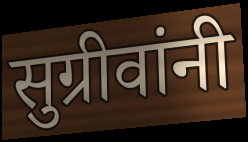
सुग्रीवांनी